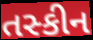
તસ્કીન